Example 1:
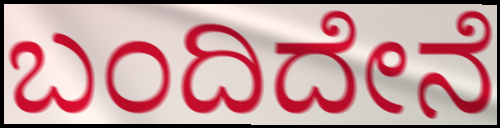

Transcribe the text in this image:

ಬಂದಿದೇನೆ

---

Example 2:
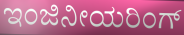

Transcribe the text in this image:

ಇಂಜಿನೀಯರಿಂಗ್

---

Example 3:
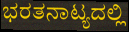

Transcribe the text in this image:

ಭರತನಾಟ್ಯದಲ್ಲಿ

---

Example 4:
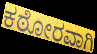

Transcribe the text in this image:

ಕಠೋರವಾಗಿ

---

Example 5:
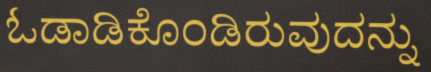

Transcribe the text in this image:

ಓಡಾಡಿಕೊಂಡಿರುವುದನ್ನು